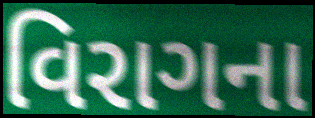
વિરાગના